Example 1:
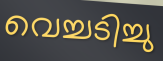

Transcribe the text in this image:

വെച്ചടിച്ചു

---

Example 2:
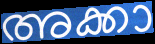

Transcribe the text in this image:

അക്കാ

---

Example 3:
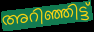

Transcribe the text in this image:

അറിഞ്ഞിട്ട്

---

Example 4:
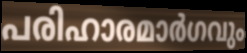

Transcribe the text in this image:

പരിഹാരമാർഗവും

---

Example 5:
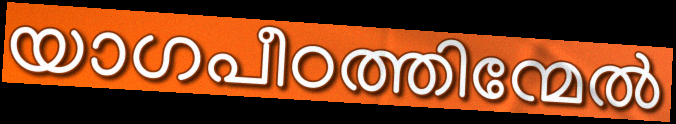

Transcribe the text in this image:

യാഗപീഠത്തിന്മേൽ